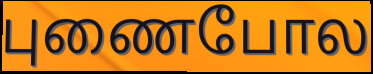
புணைபோல